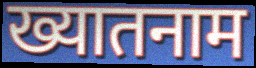
ख्यातनाम